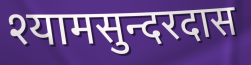
श्यामसुन्दरदास